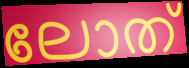
ലോത്